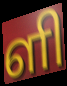
ளி